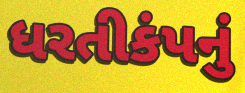
ધરતીકંપનું